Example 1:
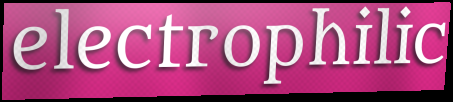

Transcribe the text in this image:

electrophilic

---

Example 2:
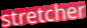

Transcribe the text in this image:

stretcher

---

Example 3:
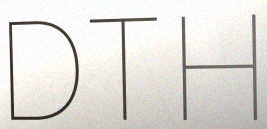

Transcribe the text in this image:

DTH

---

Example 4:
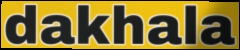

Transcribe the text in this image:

dakhala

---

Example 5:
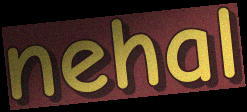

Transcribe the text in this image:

nehal